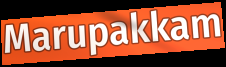
Marupakkam